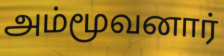
அம்மூவனார்